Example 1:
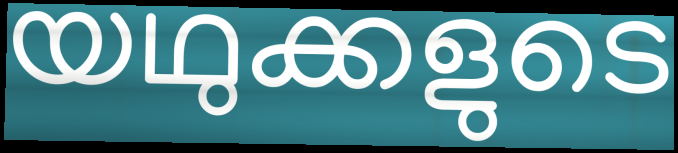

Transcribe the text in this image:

യഥുക്കളുടെ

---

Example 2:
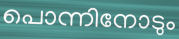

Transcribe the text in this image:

പൊന്നിനോടും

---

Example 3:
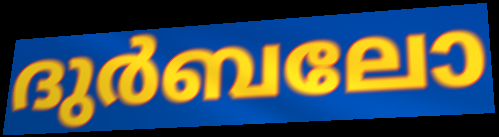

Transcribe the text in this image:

ദുർബലോ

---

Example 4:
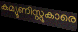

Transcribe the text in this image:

കമ്യൂണിസ്റ്റുകാരെ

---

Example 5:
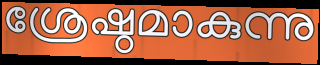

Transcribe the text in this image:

ശ്രേഷ്ഠമാകുന്നു